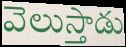
వెలుస్తాడు